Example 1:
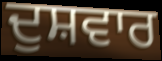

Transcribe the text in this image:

ਦੁਸ਼ਵਾਰ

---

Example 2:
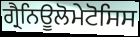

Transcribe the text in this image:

ਗ੍ਰੈਨਿਊਲੋਮੇਟੋਸਿਸ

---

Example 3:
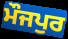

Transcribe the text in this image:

ਮੌਜਪੁਰ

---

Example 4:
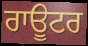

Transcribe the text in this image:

ਰਾਊਟਰ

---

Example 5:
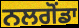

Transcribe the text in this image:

ਨਲਗੋਂਡਾ